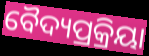
ବୈଦ୍ୟପ୍ରକ୍ରିୟା